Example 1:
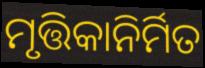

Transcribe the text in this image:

ମୃତ୍ତିକାନିର୍ମିତ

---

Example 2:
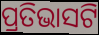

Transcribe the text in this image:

ପ୍ରତିଭାସଟି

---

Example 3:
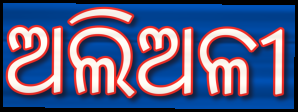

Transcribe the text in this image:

ଅଲିଅଳୀ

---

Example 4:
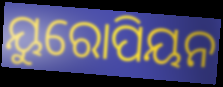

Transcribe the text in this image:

ୟୁରୋପିୟନ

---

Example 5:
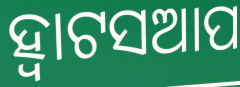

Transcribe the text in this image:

ହ୍ୱାଟସଆପ